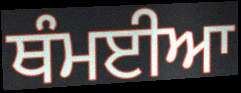
ਥੰਮਈਆ